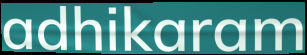
adhikaram